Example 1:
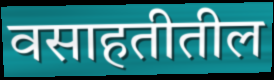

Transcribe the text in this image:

वसाहतीतील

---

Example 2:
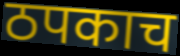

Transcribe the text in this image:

ठपकाच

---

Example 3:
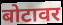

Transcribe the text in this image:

बोटावर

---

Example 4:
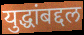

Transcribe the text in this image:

युद्धांबद्दल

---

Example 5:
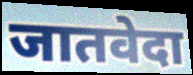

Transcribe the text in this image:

जातवेदा